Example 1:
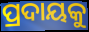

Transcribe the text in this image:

ପ୍ରଦାୟକୁ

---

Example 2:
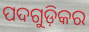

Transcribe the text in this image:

ପଦଗୁଡ଼ିକର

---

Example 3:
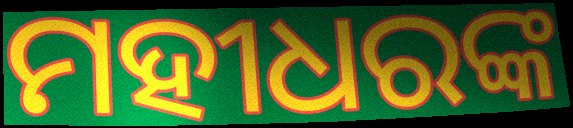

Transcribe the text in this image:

ମହୀଧରଙ୍କ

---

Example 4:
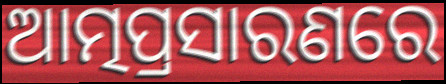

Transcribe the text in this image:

ଆତ୍ମପ୍ରସାରଣରେ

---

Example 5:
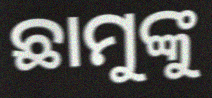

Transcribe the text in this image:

ଛାମୁଙ୍କୁ